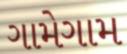
ગામેગામ